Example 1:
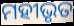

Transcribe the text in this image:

ମହୀଭୃତ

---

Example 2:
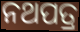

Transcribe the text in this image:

ନଥପତ୍ର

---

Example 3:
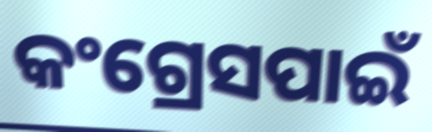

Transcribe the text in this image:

କଂଗ୍ରେସପାଇଁ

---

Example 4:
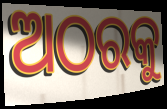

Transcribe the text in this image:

ଅଠରକୁ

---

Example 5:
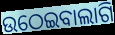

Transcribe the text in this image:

ଉଠେଇବାଲାଗି